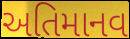
અતિમાનવ